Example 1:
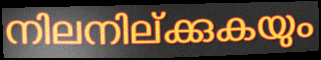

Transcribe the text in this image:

നിലനില്ക്കുകയും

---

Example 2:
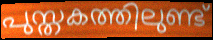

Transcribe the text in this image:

പുസ്തകത്തിലുണ്ട്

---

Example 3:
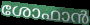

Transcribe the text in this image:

ശോഫാൻ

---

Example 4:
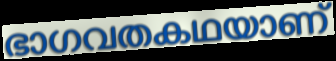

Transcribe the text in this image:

ഭാഗവതകഥയാണ്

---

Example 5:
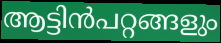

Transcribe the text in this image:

ആട്ടിൻപറ്റങ്ങളും